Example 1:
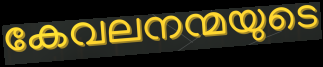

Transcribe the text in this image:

കേവലനന്മയുടെ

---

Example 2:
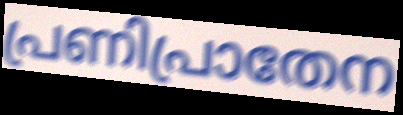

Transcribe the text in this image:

പ്രണിപ്രാതേന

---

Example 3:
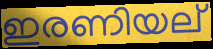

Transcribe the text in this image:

ഇരണിയല്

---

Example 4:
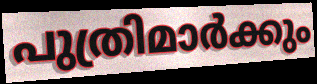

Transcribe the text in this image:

പുത്രിമാർക്കും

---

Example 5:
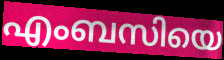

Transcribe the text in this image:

എംബസിയെ